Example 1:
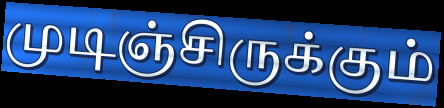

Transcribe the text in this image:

முடிஞ்சிருக்கும்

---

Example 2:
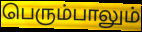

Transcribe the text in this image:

பெரும்பாலும்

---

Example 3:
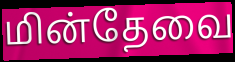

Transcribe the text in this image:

மின்தேவை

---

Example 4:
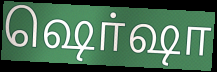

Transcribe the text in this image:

ஷெர்ஷா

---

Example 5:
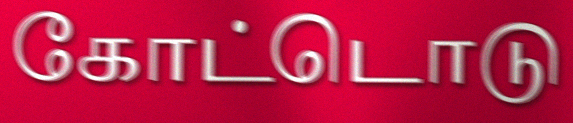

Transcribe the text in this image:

கோட்டொடு